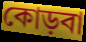
কোড়বা